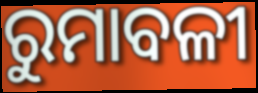
ରୁମାବଳୀ